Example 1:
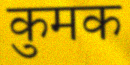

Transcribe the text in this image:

कुमक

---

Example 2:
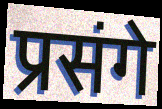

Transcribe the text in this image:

प्रसंगे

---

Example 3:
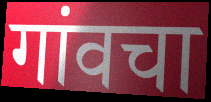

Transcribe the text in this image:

गांवचा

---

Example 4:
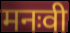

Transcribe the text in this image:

मनःवी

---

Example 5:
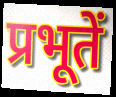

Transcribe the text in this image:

प्रभूतें